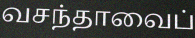
வசந்தாவைப்